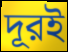
দূরই